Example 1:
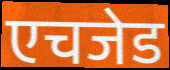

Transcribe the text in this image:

एचजेड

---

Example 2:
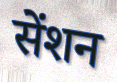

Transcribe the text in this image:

सेंशन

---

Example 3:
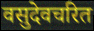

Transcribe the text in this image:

वसुदेवचरित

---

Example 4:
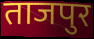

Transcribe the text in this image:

ताजपुर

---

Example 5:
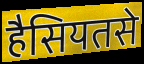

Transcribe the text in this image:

हैसियतसे